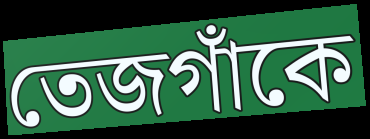
তেজগাঁকে